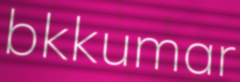
bkkumar